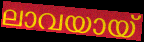
ലാവയായ്